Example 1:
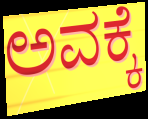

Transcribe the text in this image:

ಅವಕ್ಕೆ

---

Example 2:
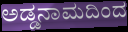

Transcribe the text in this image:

ಅಡ್ಡನಾಮದಿಂದ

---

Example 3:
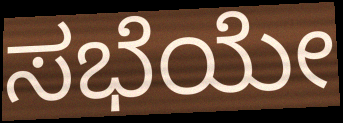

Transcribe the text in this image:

ಸಭೆಯೇ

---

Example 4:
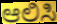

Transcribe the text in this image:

ಆಲಿಸಿ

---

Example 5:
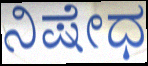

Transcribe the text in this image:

ನಿಷೇಧ